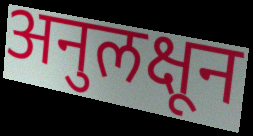
अनुलक्षून